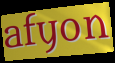
afyon